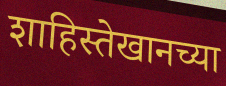
शाहिस्तेखानच्या